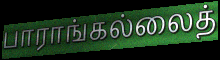
பாராங்கல்லைத்